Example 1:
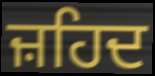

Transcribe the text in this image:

ਜ਼ਹਿਦ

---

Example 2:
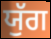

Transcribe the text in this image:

ਯੁੱਗ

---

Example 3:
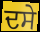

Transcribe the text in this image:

ਦਸੇ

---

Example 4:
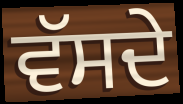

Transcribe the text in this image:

ਵੱਸਦੇ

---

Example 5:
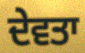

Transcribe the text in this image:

ਦੇਵਤਾ